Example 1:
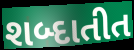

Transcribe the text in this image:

શબ્દાતીત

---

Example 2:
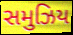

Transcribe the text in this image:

સમુઝિય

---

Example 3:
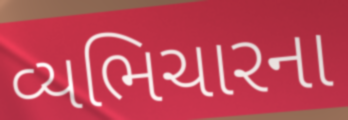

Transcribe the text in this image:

વ્યભિચારના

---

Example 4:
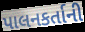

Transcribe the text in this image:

પાલનકર્તાની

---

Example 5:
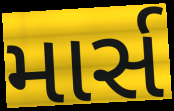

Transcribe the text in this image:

માર્સ